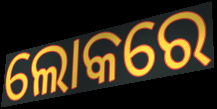
ଲୋକରେ